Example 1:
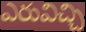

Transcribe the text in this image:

ఎరువిచ్చి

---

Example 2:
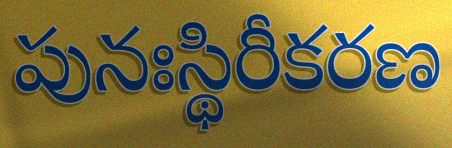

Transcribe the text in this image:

పునఃస్థిరీకరణ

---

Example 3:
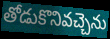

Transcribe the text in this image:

తోడుకొనివచ్చెను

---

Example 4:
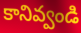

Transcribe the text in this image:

కానివ్వండి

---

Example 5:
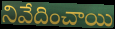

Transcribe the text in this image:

నివేదించాయి